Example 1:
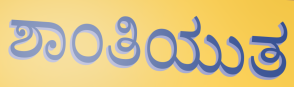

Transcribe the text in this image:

ಶಾಂತಿಯುತ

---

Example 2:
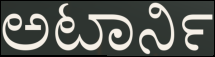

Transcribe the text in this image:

ಅಟಾರ್ನಿ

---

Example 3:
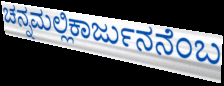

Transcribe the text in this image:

ಚನ್ನಮಲ್ಲಿಕಾರ್ಜುನನೆಂಬ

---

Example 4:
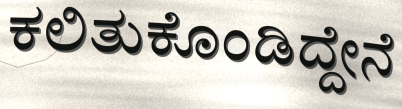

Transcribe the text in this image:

ಕಲಿತುಕೊಂಡಿದ್ದೇನೆ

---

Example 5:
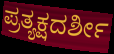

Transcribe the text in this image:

ಪ್ರತ್ಯಕ್ಷದರ್ಶೀ